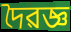
দৈৱজ্ঞ